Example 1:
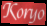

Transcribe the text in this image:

Koryo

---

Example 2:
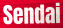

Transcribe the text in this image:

Sendai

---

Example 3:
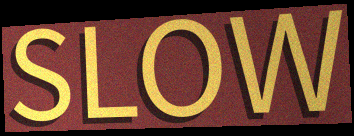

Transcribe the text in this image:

SLOW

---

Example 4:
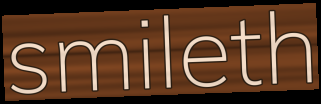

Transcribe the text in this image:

smileth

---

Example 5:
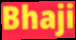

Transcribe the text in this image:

Bhaji